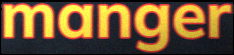
manger